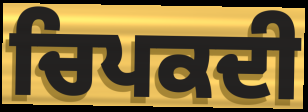
ਚਿਪਕਦੀ